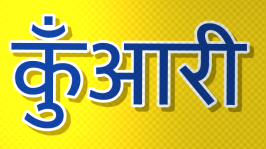
कुँआरी